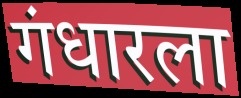
गंधारला